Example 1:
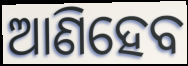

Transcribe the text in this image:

ଆଣିହେବ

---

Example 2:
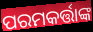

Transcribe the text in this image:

ପରମକର୍ତ୍ତାଙ୍କ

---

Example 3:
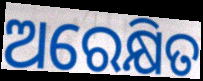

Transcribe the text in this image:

ଅରେକ୍ଷିତ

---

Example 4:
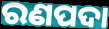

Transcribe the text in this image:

ରଣପଦା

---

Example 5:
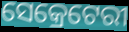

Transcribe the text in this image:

ସେକ୍ରେଟେରୀ